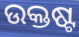
ଉକ୍ତଷ୍ଟ